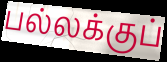
பல்லக்குப்